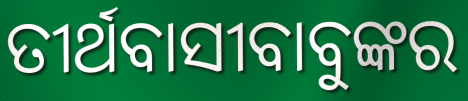
ତୀର୍ଥବାସୀବାବୁଙ୍କର